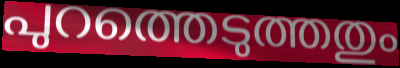
പുറത്തെടുത്തതും